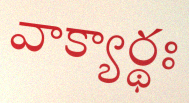
వాక్యార్థః